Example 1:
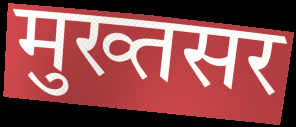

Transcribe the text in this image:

मुख्तसर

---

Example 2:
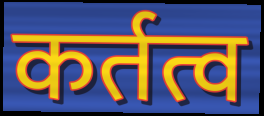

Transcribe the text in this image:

कर्तत्व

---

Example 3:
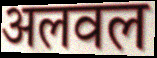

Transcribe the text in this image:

अलवल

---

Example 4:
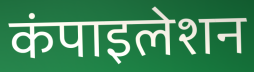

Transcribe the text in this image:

कंपाइलेशन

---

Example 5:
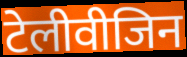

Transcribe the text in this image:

टेलीवीजिन